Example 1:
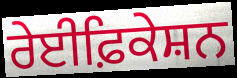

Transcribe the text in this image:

ਰੇਈਫ਼ਿਕੇਸ਼ਨ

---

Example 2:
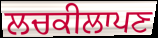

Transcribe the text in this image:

ਲਚਕੀਲਾਪਣ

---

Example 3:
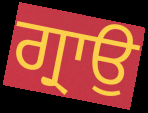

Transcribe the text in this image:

ਗ੍ਰਾਉ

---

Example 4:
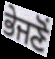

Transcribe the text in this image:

ਭੇਜਣੋਂ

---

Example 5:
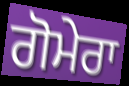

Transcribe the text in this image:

ਗੋਮੇਰਾ